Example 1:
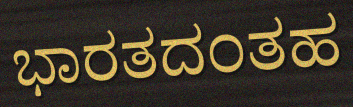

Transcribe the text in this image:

ಭಾರತದಂತಹ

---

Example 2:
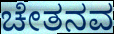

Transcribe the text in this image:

ಚೇತನವ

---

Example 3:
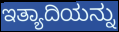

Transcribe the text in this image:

ಇತ್ಯಾದಿಯನ್ನು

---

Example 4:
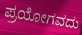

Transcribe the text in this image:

ಪ್ರಯೋಗವದು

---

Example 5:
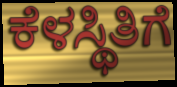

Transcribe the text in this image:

ಕೆಳಸ್ಥಿತಿಗೆ